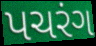
પચરંગ